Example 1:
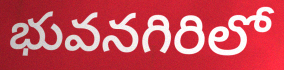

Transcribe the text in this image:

భువనగిరిలో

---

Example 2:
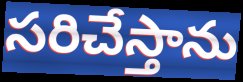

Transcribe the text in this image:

సరిచేస్తాను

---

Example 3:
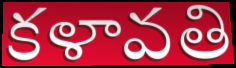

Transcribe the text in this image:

కళావతి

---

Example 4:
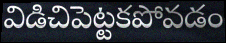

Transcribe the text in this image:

విడిచిపెట్టకపోవడం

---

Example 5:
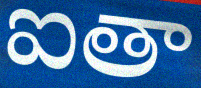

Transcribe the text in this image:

ఐతా